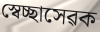
স্বেচ্ছাসেৱক